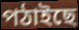
পঠাইছে